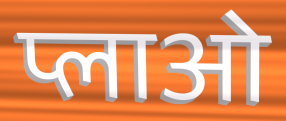
प्लाओ